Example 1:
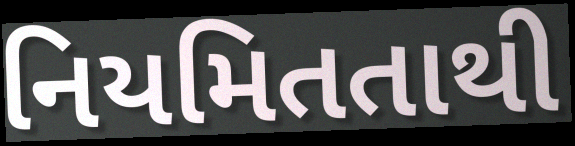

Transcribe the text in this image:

નિયમિતતાથી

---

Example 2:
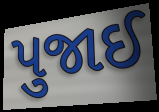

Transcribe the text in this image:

પુજાઈ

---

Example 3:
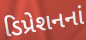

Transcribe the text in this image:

ડિપ્રેશનનાં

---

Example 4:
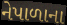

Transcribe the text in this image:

નેપાળાના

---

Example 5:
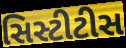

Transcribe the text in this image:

સિસ્ટીટીસ